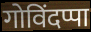
गोविंदप्पा